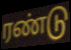
ரண்டு